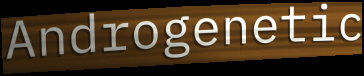
Androgenetic